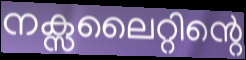
നക്സലൈറ്റിന്റെ